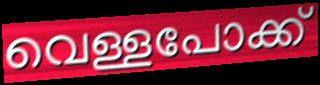
വെള്ളപോക്ക്